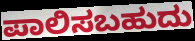
ಪಾಲಿಸಬಹುದು